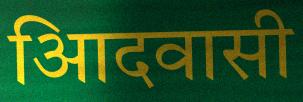
आिदवासी